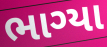
ભાગ્યા